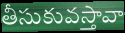
తీసుకువస్తావా